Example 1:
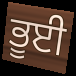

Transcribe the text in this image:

ਭੂਈ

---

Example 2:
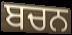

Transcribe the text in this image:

ਬਚਨ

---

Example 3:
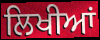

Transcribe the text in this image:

ਲਿਖੀਆਂ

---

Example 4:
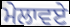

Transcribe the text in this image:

ਮੇਲਾਵਏ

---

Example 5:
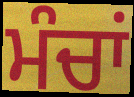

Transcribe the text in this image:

ਮੰਚਾਂ